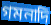
গমনাদি